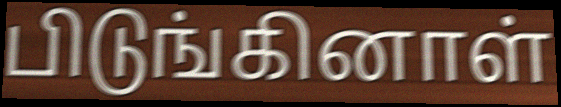
பிடுங்கினாள்